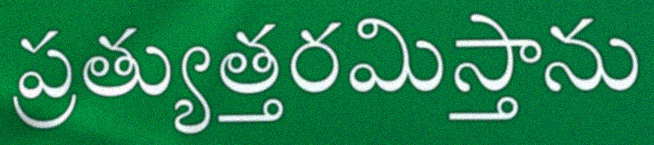
ప్రత్యుత్తరమిస్తాను